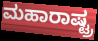
ಮಹಾರಾಷ್ಟ್ರ